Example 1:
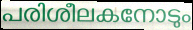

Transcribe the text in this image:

പരിശീലകനോടും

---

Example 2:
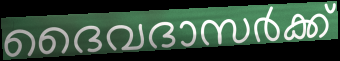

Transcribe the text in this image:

ദൈവദാസർക്ക്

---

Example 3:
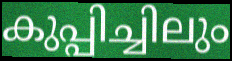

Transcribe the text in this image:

കുപ്പിച്ചിലും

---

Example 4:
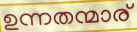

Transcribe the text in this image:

ഉന്നതന്മാര്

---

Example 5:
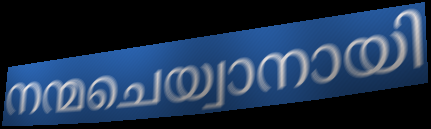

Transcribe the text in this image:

നന്മചെയ്വാനായി